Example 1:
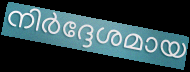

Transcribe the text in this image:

നിർദ്ദേശമായ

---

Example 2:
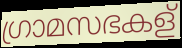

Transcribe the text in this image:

ഗ്രാമസഭകള്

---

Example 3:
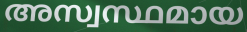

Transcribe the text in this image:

അസ്വസ്ഥമായ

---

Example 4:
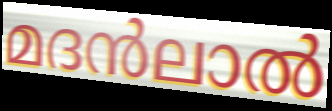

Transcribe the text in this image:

മദൻലാൽ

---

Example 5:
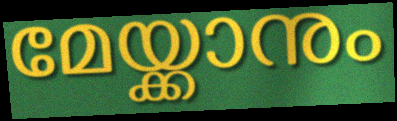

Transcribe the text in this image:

മേയ്ക്കാനും